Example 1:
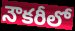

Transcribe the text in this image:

నౌకరీలో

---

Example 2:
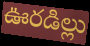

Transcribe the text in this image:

ఊరడిల్లు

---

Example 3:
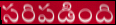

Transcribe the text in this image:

సరిపడింది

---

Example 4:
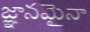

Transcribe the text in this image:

జ్ఞానమైనా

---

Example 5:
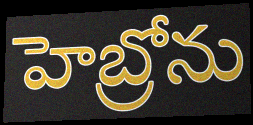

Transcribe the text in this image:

హెబ్రోను